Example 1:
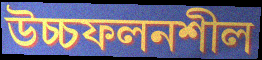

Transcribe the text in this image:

উচ্চফলনশীল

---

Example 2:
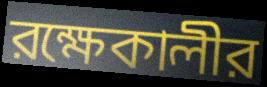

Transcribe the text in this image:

রক্ষেকালীর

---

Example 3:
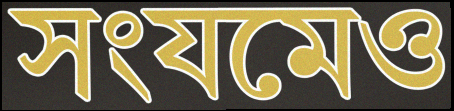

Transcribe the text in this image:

সংযমেও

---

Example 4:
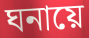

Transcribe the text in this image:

ঘনায়ে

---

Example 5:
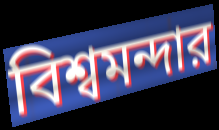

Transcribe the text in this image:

বিশ্বমন্দার